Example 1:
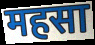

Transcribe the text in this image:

महसा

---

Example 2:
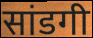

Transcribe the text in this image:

सांडगी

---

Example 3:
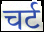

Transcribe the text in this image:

चर्ट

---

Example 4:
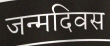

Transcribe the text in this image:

जन्मदिवस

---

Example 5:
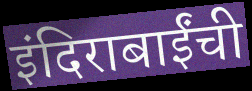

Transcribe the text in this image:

इंदिराबाईंची